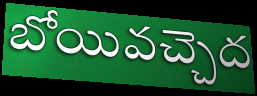
బోయివచ్చెద